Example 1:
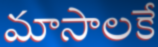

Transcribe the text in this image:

మాసాలకే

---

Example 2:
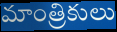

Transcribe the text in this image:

మాంత్రికులు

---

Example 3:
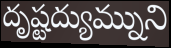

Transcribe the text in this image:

దృష్టద్యుమ్నుని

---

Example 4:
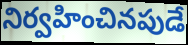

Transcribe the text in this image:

నిర్వహించినపుడే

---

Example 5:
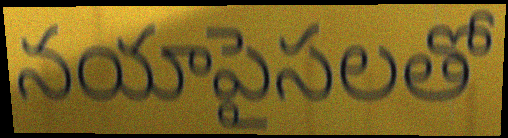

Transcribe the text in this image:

నయాపైసలతో